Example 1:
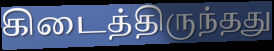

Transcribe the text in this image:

கிடைத்திருந்தது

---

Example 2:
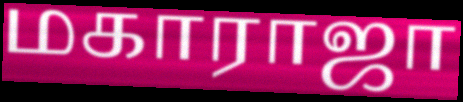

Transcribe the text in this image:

மகாராஜா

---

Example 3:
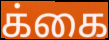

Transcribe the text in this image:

க்கை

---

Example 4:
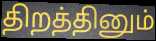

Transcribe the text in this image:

திறத்தினும்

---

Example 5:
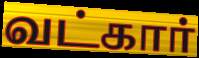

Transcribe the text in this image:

வட்கார்